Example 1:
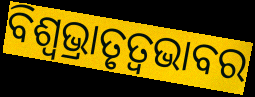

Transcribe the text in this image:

ବିଶ୍ଵଭ୍ରାତୃତ୍ୱଭାବର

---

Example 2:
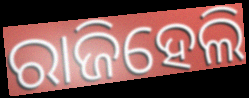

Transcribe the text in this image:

ରାଜିହେଲି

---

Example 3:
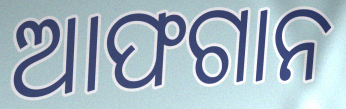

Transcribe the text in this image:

ଆଫଗାନ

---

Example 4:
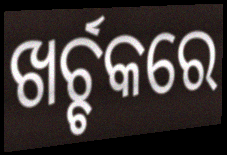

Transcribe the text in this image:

ଖର୍ଚ୍ଚକରେ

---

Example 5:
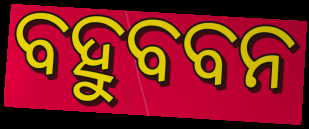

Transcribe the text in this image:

ବହୁବବନ